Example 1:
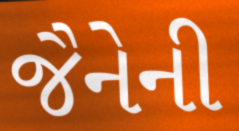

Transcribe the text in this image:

જૈનેની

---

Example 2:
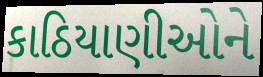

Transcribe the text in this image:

કાઠિયાણીઓને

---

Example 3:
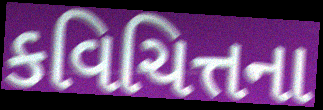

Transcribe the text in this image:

કવિચિત્તના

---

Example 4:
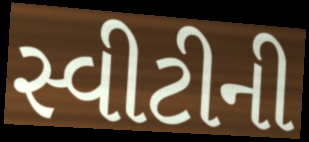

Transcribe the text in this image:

સ્વીટીની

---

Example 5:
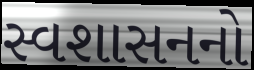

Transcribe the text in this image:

સ્વશાસનનો